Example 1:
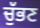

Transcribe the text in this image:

ਚੁੱਭਣ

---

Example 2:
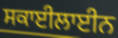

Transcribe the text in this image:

ਸਕਾਈਲਾਈਨ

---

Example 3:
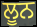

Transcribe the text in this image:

ਲੂਨ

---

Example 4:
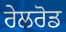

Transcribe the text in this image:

ਰੇਲਰੋਡ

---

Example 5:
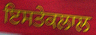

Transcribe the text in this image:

ਇਸਤੇਕਲਾਲ